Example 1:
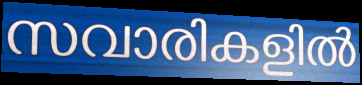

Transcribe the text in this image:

സവാരികളിൽ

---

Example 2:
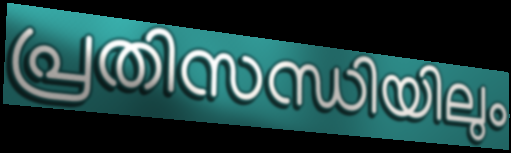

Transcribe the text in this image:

പ്രതിസന്ധിയിലും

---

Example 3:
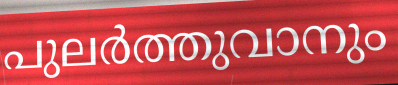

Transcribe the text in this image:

പുലർത്തുവാനും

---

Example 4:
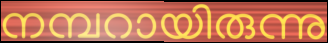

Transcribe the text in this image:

നമ്പറായിരുന്നു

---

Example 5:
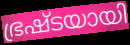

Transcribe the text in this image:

ഭ്രഷ്ടയായി